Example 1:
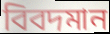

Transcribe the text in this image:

বিবদমান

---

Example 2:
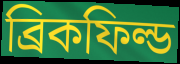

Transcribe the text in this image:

ব্রিকফিল্ড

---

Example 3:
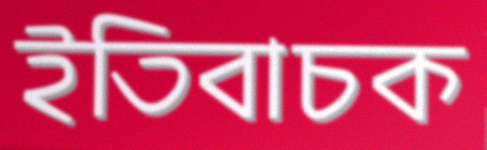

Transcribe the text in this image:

ইতিবাচক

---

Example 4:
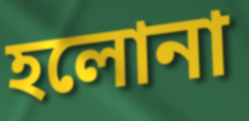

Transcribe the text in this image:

হলোনা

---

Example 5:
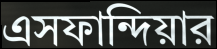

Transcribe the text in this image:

এসফান্দিয়ার